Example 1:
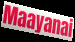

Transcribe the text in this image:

Maayanai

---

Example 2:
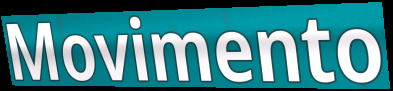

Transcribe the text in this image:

Movimento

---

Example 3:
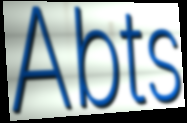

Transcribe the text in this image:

Abts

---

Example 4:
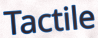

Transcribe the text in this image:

Tactile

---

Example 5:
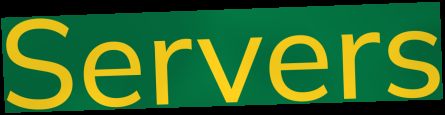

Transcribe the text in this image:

Servers